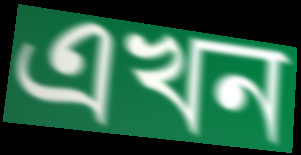
এখন